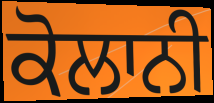
ਕੋਲਾਨੀ